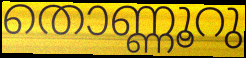
തൊണ്ണൂറു